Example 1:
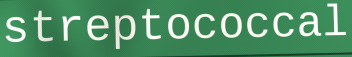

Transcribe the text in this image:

streptococcal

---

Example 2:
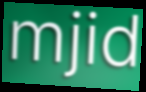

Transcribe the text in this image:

mjid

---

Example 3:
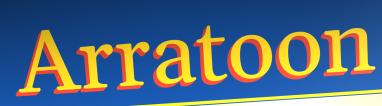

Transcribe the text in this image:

Arratoon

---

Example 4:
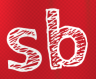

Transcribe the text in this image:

sb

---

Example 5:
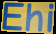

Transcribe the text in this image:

Ehi